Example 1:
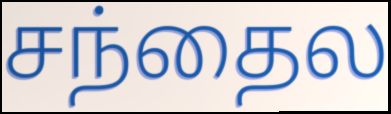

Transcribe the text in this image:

சந்தைல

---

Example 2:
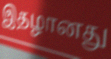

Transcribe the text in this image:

இதழானது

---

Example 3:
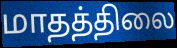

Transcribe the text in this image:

மாதத்திலை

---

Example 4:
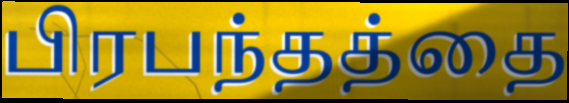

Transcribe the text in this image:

பிரபந்தத்தை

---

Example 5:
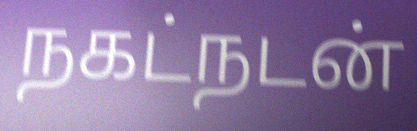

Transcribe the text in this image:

நகட்நடன்